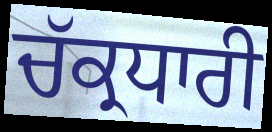
ਚੱਕ੍ਰਧਾਰੀ